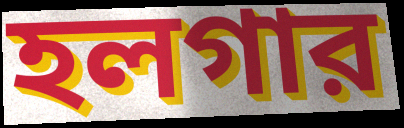
হলগার